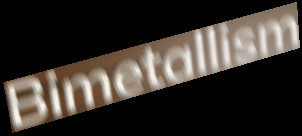
Bimetallism